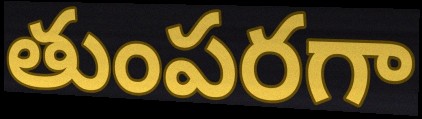
తుంపరగా